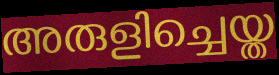
അരുളിച്ചെയ്ത